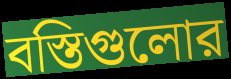
বস্তিগুলোর